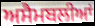
ਅਸੈਮਬਲੀਆਂ